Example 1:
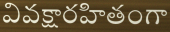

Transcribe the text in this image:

వివక్షారహితంగా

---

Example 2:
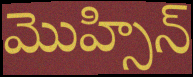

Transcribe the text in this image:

మొహ్సిన్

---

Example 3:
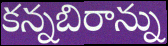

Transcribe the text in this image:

కన్నబిరాన్ను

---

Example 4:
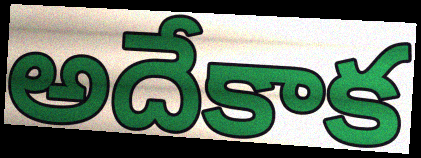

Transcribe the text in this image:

అదేకాక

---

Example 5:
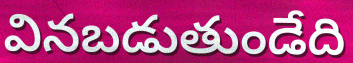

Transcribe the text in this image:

వినబడుతుండేది